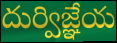
దుర్విజ్ఞేయ